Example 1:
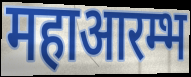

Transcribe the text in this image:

महाआरम्भ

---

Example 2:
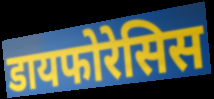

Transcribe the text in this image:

डायफोरेसिस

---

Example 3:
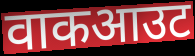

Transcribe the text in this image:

वाकआउट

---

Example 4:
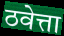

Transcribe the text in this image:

ठवेत्ता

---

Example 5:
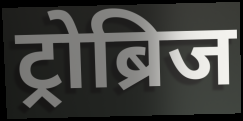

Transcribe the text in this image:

ट्रोब्रिज